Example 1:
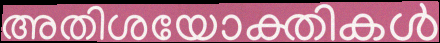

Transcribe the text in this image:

അതിശയോക്തികൾ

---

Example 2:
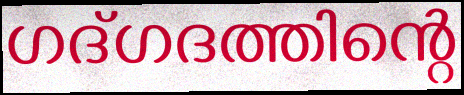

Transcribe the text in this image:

ഗദ്ഗദത്തിന്റെ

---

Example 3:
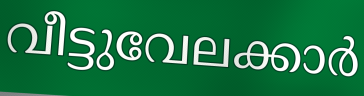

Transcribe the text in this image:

വീട്ടുവേലക്കാർ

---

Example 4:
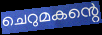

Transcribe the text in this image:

ചെറുമകന്റെ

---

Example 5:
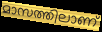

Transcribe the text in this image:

മാസത്തിലാണ്